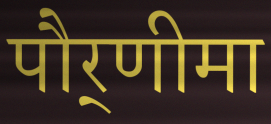
पौर्णीमा